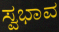
ಸ್ವಭಾವ